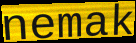
nemak